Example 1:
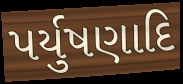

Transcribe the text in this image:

પર્યુષણાદિ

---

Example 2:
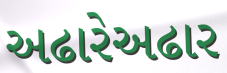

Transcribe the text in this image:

અઢારેઅઢાર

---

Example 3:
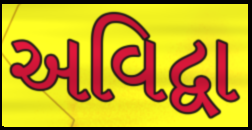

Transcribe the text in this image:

અવિદ્વા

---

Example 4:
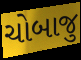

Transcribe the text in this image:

ચોબાજુ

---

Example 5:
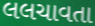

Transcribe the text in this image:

લલચાવતા